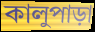
কালুপাড়া